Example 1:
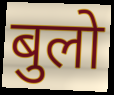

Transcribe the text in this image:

बुलो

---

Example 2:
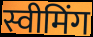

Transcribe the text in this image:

स्‍वीमिंग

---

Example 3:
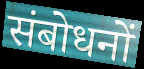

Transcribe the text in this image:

संबोधनों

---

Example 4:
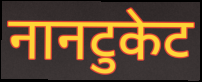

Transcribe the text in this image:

नानटुकेट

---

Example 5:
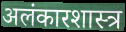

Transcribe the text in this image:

अलंकारशास्त्र